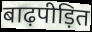
बाढ़पीड़ित